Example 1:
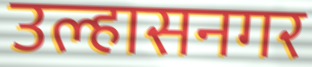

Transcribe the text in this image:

उल्हासनगर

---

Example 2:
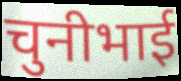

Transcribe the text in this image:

चुनीभाई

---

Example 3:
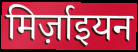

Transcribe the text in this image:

मिर्ज़ाइयन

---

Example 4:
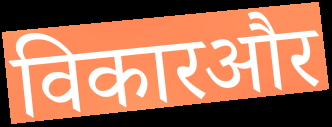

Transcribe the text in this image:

विकारऔर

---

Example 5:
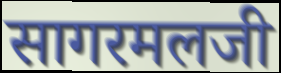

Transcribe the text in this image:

सागरमलजी